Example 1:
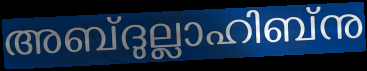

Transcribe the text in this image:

അബ്ദുല്ലാഹിബ്നു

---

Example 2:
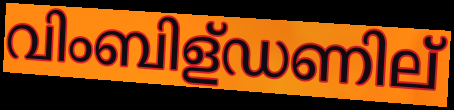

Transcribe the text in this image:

വിംബിള്ഡണില്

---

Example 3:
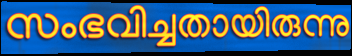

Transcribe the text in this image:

സംഭവിച്ചതായിരുന്നു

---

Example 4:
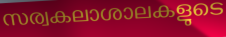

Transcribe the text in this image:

സര്വകലാശാലകളുടെ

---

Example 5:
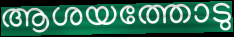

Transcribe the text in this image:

ആശയത്തോടു